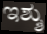
ಇಶ್ಶು